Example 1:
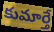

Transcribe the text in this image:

కుమార్తే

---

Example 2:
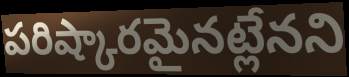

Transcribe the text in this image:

పరిష్కారమైనట్లేనని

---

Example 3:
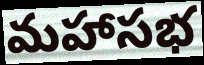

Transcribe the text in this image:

మహాసభ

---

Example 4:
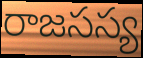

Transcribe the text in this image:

రాజసస్య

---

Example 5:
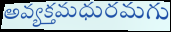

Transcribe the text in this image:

అవ్యక్తమధురమగు